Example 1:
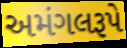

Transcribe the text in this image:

અમંગલરૂપે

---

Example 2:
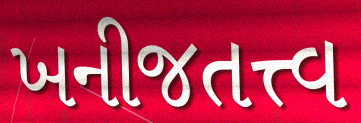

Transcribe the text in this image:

ખનીજતત્ત્વ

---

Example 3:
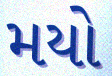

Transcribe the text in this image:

મયો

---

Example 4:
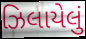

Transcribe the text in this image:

ઝિલાયેલું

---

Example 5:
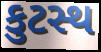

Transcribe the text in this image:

કુટસ્થ